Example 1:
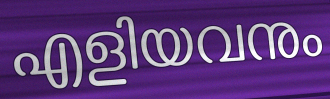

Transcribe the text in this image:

എളിയവനും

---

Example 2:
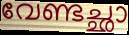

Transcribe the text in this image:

വേണ്ടച്ഛാ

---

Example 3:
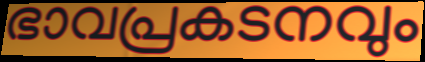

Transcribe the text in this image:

ഭാവപ്രകടനവും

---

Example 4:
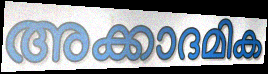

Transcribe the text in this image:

അക്കാദമിക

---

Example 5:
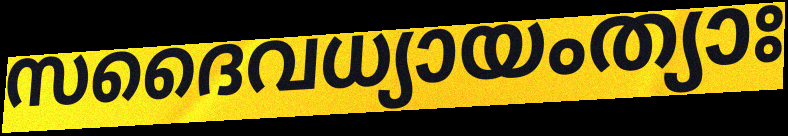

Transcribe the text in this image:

സദൈവധ്യായംത്യാഃ